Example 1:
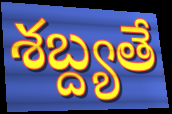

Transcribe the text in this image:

శబ్ద్యతే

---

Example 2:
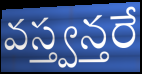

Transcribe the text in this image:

వస్త్వన్తరే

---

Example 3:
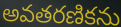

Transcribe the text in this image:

అవతరణికను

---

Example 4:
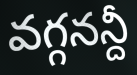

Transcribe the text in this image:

వగ్గనన్దీ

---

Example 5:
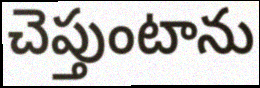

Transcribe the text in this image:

చెప్తుంటాను